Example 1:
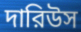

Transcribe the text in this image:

দারিউস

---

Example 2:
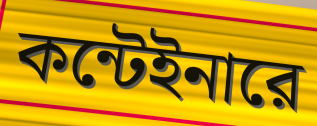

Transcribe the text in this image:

কন্টেইনারে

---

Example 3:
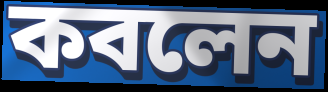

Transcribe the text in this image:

কবলেন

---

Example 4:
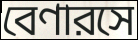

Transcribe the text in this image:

বেণারসে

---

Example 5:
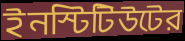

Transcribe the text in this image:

ইনস্টিটিউটের